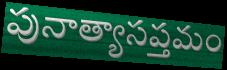
పునాత్యాసప్తమం